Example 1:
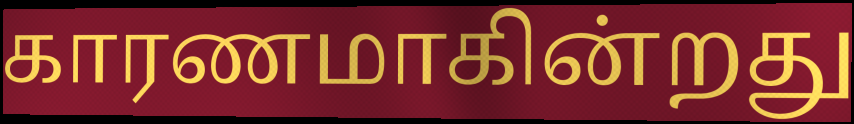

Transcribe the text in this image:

காரணமாகின்றது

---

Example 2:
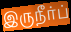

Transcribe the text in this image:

இருநீர்ப்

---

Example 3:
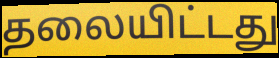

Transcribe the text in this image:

தலையிட்டது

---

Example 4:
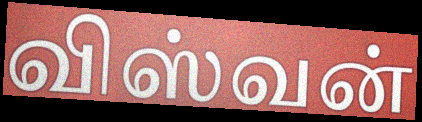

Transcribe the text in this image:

விஸ்வன்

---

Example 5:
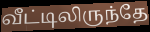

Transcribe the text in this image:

வீட்டிலிருந்தே